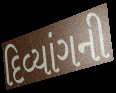
દિવ્યાંગની